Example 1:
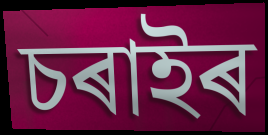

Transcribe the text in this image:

চৰাইৰ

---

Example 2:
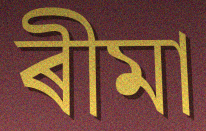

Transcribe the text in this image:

ৰীমা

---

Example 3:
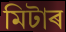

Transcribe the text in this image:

মিটাৰ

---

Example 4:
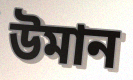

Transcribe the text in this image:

উমান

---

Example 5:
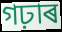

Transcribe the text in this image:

গঢ়াৰ